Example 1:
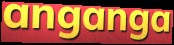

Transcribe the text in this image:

anganga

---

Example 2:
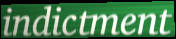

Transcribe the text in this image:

indictment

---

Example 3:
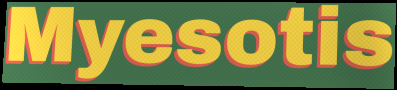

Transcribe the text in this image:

Myesotis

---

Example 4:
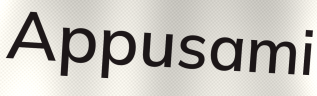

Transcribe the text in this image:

Appusami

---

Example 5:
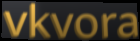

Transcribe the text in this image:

vkvora